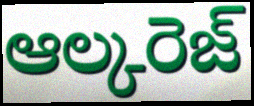
ఆల్కరెజ్